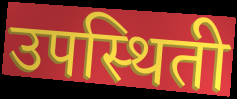
उपस्थिती